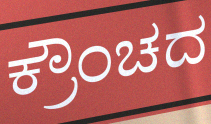
ಕ್ರೌಂಚದ